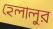
হেলালুর